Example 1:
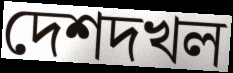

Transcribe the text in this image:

দেশদখল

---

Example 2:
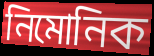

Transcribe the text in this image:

নিমোনিক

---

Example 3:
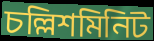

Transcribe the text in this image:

চল্লিশমিনিট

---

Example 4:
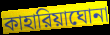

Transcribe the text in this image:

কাহারিয়াঘোনা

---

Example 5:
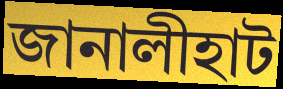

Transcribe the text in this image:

জানালীহাট